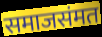
समाजसंमत